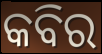
କବିର